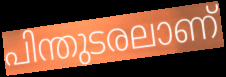
പിന്തുടരലാണ്